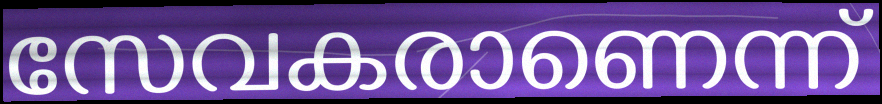
സേവകരാണെന്ന്